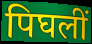
पिघलीं